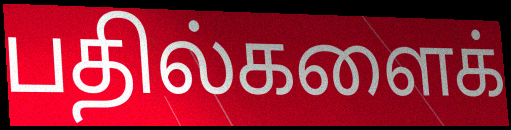
பதில்களைக்